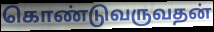
கொண்டுவருவதன்